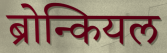
ब्रोन्कियल